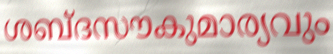
ശബ്ദസൗകുമാര്യവും